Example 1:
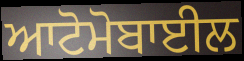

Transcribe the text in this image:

ਆਟੋਮੋਬਾਈਲ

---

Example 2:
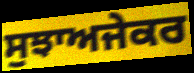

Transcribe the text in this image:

ਸੁਝਾਅਜੇਕਰ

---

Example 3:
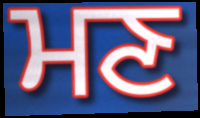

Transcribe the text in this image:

ਮਣ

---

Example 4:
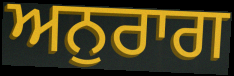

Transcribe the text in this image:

ਅਨੁਰਾਗ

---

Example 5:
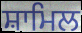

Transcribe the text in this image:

ਸ਼ਾਮਿਲ